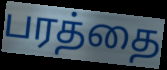
பரத்தை